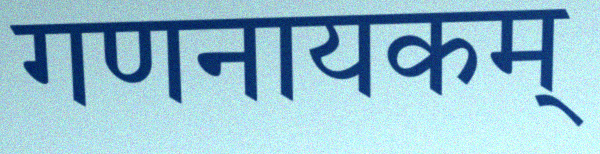
गणनायकम्